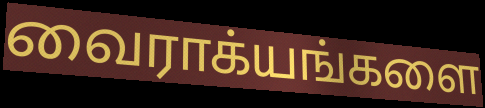
வைராக்யங்களை